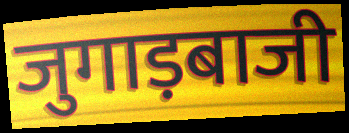
जुगाड़बाजी